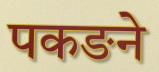
पकङने